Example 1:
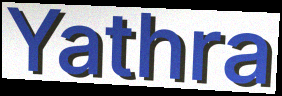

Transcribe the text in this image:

Yathra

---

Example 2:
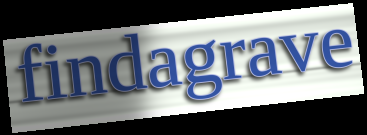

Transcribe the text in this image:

findagrave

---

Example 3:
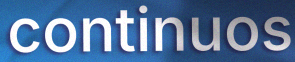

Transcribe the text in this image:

continuos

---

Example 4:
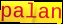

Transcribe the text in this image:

palan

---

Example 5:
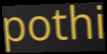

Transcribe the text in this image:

pothi